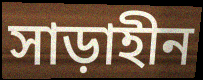
সাড়াহীন